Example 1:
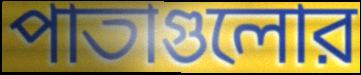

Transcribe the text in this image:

পাতাগুলোর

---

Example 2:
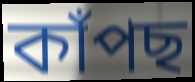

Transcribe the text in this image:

কাঁপছ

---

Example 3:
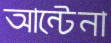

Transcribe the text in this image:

আন্টেনা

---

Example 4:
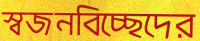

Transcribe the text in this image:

স্বজনবিচ্ছেদের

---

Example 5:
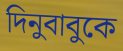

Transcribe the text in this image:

দিনুবাবুকে